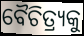
ବୈଚିତ୍ର୍ୟକୁ